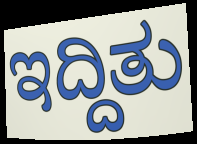
ಇದ್ದಿತು